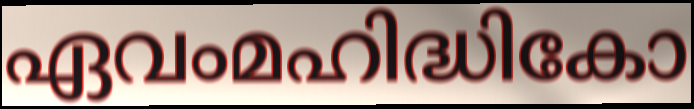
ഏവംമഹിദ്ധികോ